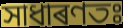
সাধাৰণতঃ